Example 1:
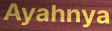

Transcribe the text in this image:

Ayahnya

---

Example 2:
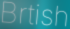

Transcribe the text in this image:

Brtish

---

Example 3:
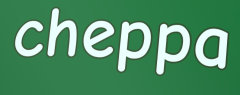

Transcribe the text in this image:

cheppa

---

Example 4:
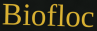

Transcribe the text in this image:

Biofloc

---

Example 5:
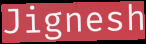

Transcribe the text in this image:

Jignesh